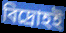
বিদ্রোহই